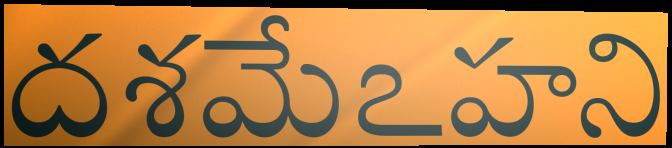
దశమేఽహని